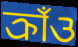
ক্রাঁও